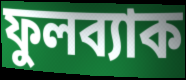
ফুলব্যাক